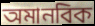
অমানবিক